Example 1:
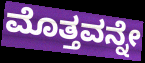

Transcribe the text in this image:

ಮೊತ್ತವನ್ನೇ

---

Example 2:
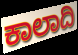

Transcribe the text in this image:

ಕಾಲಾದಿ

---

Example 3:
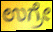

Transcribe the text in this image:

ಉಗ್ರೇ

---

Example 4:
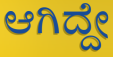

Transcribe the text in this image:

ಆಗಿದ್ದೇ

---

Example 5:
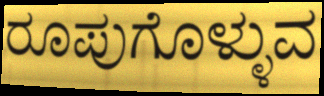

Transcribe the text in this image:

ರೂಪುಗೊಳ್ಳುವ